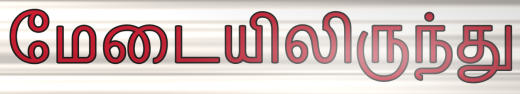
மேடையிலிருந்து